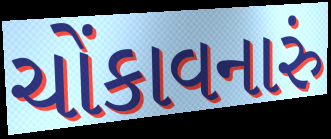
ચોંકાવનારું